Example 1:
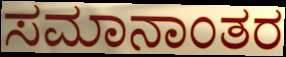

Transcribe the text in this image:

ಸಮಾನಾಂತರ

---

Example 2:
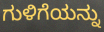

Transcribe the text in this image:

ಗುಳಿಗೆಯನ್ನು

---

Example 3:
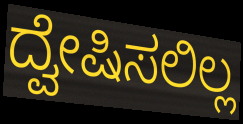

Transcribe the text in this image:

ದ್ವೇಷಿಸಲಿಲ್ಲ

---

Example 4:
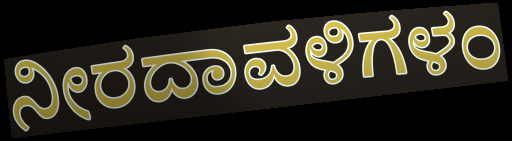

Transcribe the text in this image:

ನೀರದಾವಳಿಗಳಂ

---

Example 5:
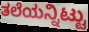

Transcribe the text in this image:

ತಲೆಯನ್ನಿಟ್ಟು